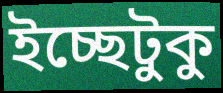
ইচ্ছেটুকু